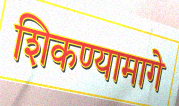
शिकण्यामागे